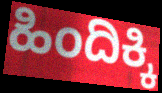
ಹಿಂದಿಕ್ಕಿ